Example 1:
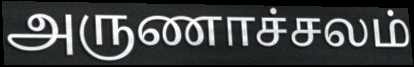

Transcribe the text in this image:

அருணாச்சலம்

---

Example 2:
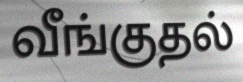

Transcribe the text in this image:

வீங்குதல்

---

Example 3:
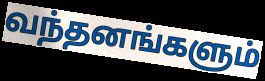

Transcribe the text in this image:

வந்தனங்களும்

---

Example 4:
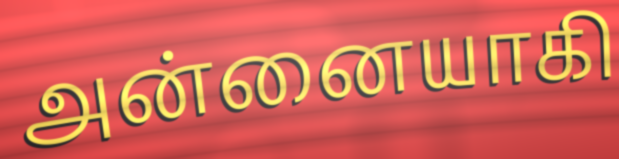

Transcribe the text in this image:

அன்னையாகி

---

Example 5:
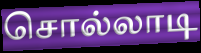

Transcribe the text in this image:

சொல்லாடி